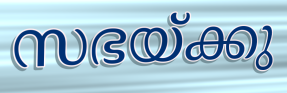
സഭയ്ക്കു